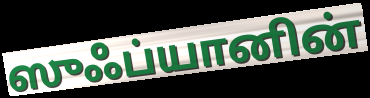
ஸுஃப்யானின்